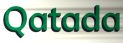
Qatada